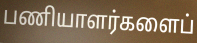
பணியாளர்களைப்